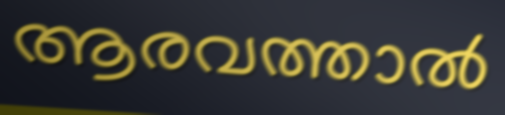
ആരവത്താൽ